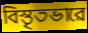
বিস্তৃতভাৱে